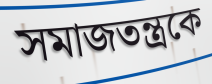
সমাজতন্ত্রকে